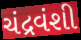
ચંદ્રવંશી